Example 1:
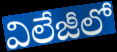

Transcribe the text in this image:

విలేజీలో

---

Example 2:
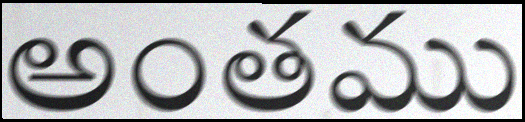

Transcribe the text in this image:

అంతము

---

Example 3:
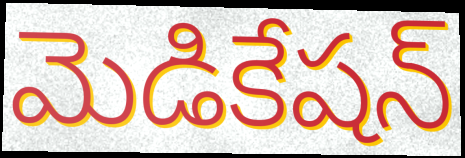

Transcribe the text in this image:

మెడికేషన్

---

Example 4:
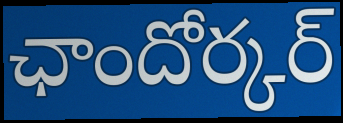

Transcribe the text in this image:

ఛాందోర్కర్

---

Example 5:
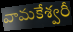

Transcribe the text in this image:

వామకేశ్వరీ